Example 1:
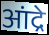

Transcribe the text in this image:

आंद्रे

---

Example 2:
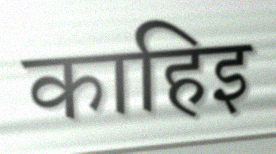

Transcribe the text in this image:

काहिइ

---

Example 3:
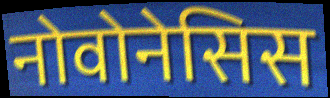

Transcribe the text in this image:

नोवोनेसिस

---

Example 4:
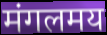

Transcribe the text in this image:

मंगलमय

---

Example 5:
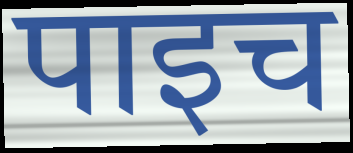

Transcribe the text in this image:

पाइच